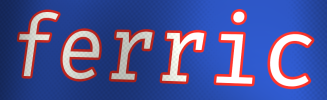
ferric